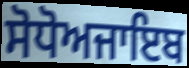
ਸੋਧੋਅਜਾਇਬ